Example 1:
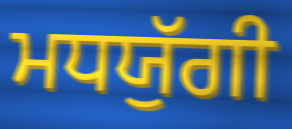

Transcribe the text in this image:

ਮਧਯੁੱਗੀ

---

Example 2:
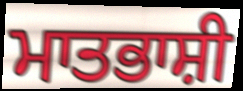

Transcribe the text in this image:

ਮਾਤਭਾਸ਼ੀ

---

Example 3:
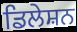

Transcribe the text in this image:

ਡਿਲੇਸ਼ਨ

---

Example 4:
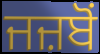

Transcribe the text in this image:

ਜਜ਼ਬੋਂ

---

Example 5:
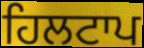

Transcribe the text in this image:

ਹਿਲਟਾਪ